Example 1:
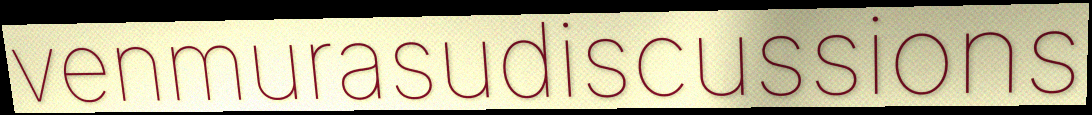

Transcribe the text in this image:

venmurasudiscussions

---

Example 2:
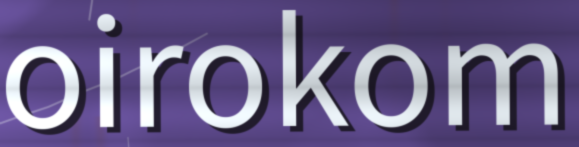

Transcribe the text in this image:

oirokom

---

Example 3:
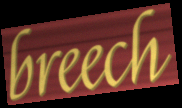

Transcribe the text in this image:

breech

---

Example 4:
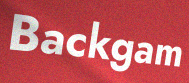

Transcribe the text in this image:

Backgam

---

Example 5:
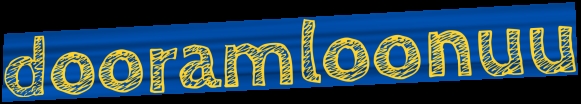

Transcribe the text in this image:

dooramloonuu